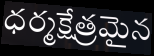
ధర్మక్షేత్రమైన